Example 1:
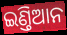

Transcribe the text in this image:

ଇଣ୍ତିଆନ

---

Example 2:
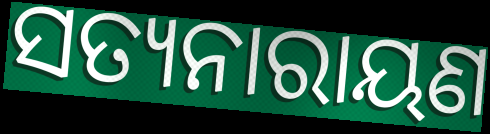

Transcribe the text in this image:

ସତ୍ୟନାରାୟଣ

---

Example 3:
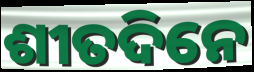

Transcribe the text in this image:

ଶୀତଦିନେ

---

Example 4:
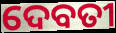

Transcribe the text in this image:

ଦେବତୀ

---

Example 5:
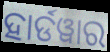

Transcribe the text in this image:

ହାର୍ଡୱାର